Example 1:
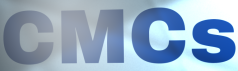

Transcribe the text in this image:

CMCs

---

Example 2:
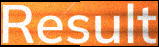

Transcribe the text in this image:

Result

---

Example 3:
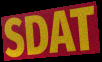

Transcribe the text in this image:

SDAT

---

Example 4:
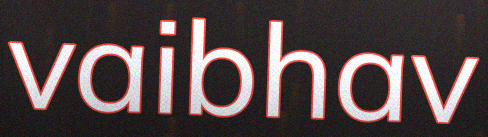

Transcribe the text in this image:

vaibhav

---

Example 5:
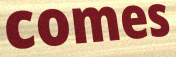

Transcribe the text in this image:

comes